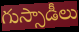
గుస్సాడీలు